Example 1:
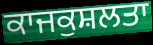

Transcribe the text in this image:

ਕਾਜਕੁਸ਼ਲਤਾ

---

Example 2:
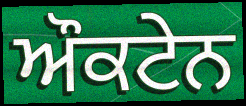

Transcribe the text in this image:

ਔਕਟੇਨ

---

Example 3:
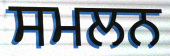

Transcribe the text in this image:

ਸਮਲਨ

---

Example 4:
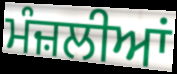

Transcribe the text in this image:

ਮੰਜ਼ਲੀਆਂ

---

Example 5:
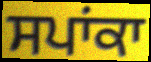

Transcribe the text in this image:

ਸਪਾਂਕਾ